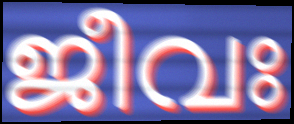
ജീവഃ